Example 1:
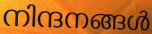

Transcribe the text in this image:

നിന്ദനങ്ങൾ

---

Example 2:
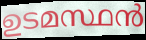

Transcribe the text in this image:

ഉടമസ്ഥൻ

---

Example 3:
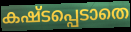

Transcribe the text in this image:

കഷ്ടപ്പെടാതെ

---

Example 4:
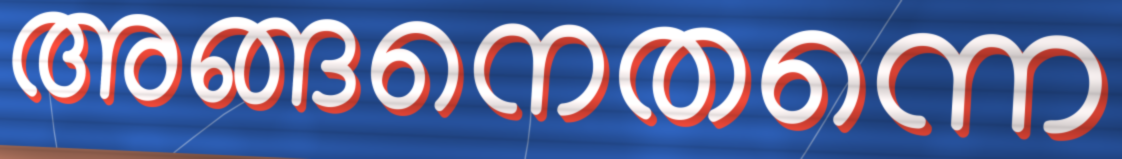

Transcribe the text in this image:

അങ്ങനെതന്നെ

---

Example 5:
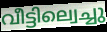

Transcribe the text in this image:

വീട്ടില്വെച്ചു